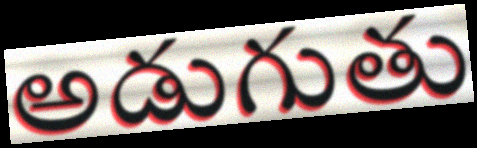
అడుగుతు